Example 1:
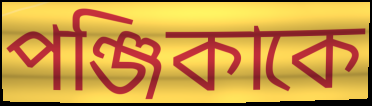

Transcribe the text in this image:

পঞ্জিকাকে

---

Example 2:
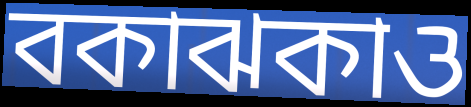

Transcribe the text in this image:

বকাঝকাও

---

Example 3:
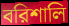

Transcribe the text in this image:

বরিশালি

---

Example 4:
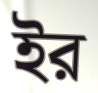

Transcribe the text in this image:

ইর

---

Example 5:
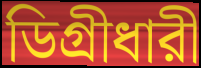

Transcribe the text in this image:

ডিগ্রীধারী